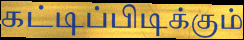
கட்டிப்பிடிக்கும்